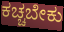
ಕಚ್ಚಬೇಕು